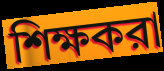
শিক্ষকরা